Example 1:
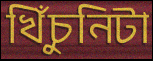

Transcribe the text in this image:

খিঁচুনিটা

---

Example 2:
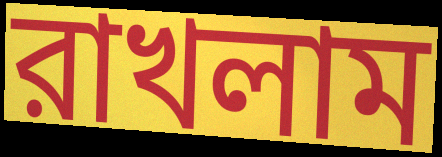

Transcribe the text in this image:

রাখলাম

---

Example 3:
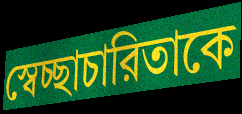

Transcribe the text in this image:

স্বেচ্ছাচারিতাকে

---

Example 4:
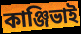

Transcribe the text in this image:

কাঞ্জিভাই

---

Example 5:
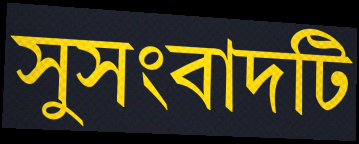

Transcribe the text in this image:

সুসংবাদটি